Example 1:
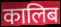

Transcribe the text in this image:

कालिब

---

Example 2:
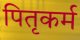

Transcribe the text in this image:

पितृकर्म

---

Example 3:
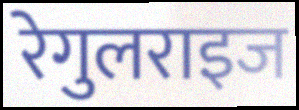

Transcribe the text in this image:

रेगुलराइज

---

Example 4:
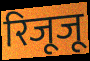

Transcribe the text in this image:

रिजूजू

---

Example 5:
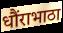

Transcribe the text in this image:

धौंराभाठा